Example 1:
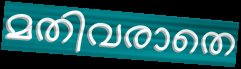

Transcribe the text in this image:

മതിവരാതെ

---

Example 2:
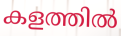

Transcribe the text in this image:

കളത്തിൽ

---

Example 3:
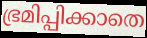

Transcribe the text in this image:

ഭ്രമിപ്പിക്കാതെ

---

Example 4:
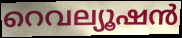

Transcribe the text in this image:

റെവല്യൂഷൻ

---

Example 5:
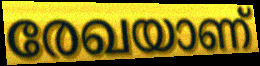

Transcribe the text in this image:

രേഖയാണ്